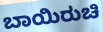
ಬಾಯಿರುಚಿ